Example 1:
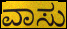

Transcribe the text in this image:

ವಾಸು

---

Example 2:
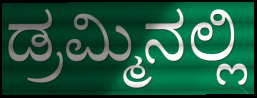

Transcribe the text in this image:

ಡ್ರಮ್ಮಿನಲ್ಲಿ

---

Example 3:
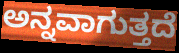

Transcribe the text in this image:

ಅನ್ನವಾಗುತ್ತದೆ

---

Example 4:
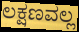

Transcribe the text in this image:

ಲಕ್ಷಣವಲ್ಲ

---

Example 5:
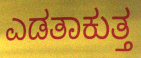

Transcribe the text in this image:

ಎಡತಾಕುತ್ತ